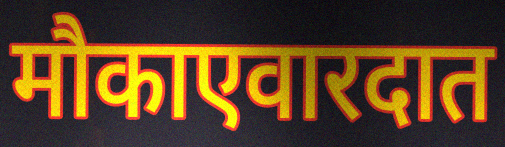
मौकाएवारदात